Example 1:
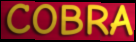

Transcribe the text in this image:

COBRA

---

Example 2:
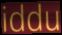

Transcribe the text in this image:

iddu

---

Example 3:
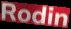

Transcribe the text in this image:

Rodin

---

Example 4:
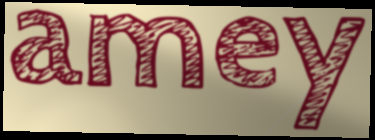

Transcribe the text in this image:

amey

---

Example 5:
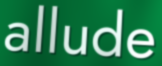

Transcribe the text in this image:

allude